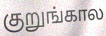
குறுங்கால